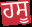
ਹਸੂ